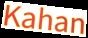
Kahan